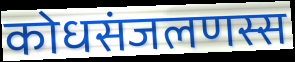
कोधसंजलणस्स